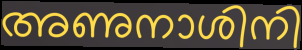
അണുനാശിനി